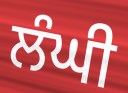
ਲੰਘੀ